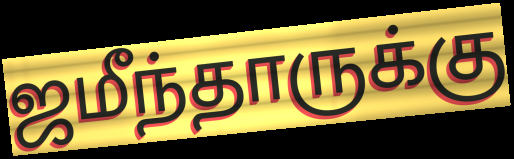
ஜமீந்தாருக்கு